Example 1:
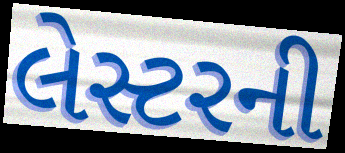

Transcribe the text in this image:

લેસ્ટરની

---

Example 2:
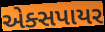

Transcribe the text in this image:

એક્સપાયર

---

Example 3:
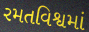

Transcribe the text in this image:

રમતવિશ્વમાં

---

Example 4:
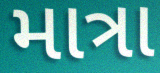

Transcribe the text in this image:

માત્રા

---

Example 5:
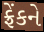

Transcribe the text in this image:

ફ્રેંકને